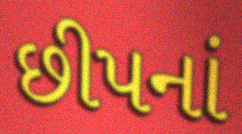
છીપનાં